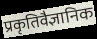
प्रकृतिवैज्ञानिक